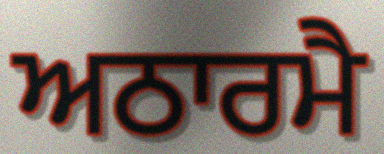
ਅਠਾਰਮੈ